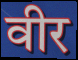
वीर